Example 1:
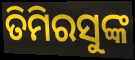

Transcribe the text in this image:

ତିମିରସୁଙ୍କ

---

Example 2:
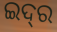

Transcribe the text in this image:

ଇଦ୍‍ର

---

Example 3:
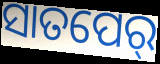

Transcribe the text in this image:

ସାତପେର୍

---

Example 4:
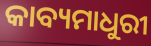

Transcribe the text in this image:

କାବ୍ୟମାଧୁରୀ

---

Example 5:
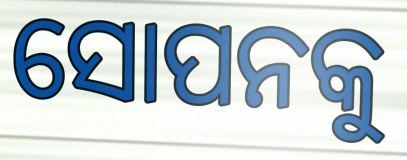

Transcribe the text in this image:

ସୋପନକୁ